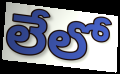
లేలో